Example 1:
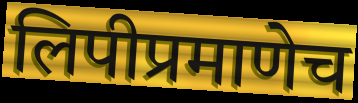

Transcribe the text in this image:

लिपीप्रमाणेच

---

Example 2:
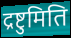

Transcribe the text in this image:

द्रष्टुमिति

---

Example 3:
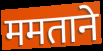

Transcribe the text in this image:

ममताने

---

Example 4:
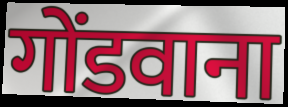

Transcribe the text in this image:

गोंडवाना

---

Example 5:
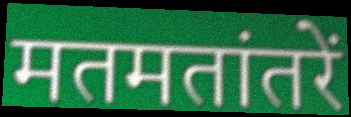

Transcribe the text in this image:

मतमतांतरें